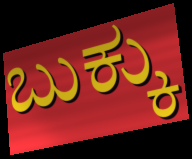
ಬುಕ್ಕು